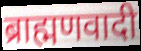
ब्राह्मणवादी